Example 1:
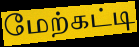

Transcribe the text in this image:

மேற்கட்டி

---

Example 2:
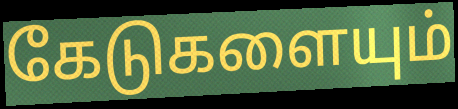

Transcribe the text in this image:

கேடுகளையும்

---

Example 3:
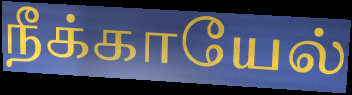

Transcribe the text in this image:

நீக்காயேல்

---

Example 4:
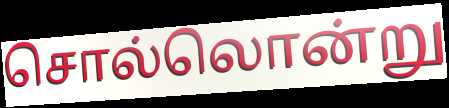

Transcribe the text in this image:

சொல்லொன்று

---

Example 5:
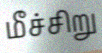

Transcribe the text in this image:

மீச்சிறு